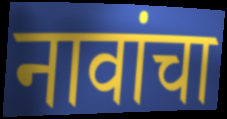
नावांचा